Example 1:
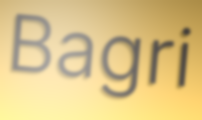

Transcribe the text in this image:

Bagri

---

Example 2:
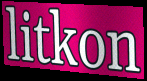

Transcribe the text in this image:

litkon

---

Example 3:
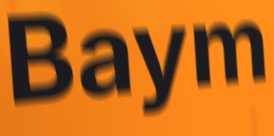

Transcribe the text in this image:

Baym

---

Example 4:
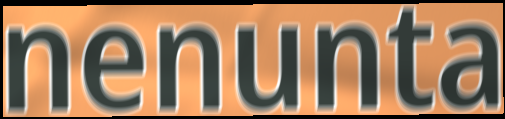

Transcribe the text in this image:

nenunta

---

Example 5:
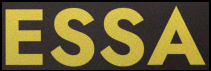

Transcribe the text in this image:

ESSA